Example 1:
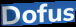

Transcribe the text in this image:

Dofus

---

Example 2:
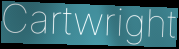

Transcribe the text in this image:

Cartwright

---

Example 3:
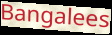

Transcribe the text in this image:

Bangalees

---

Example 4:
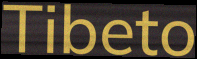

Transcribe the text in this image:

Tibeto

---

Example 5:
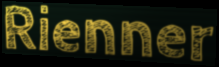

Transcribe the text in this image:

Rienner